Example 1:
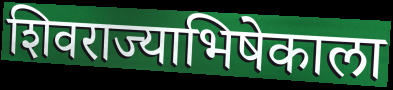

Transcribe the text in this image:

शिवराज्याभिषेकाला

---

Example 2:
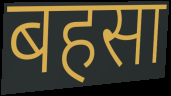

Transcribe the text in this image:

बहसा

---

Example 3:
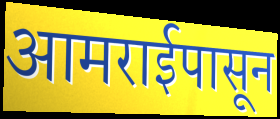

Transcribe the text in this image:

आमराईपासून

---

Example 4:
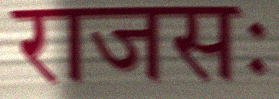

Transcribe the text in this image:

राजसः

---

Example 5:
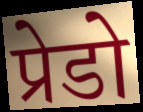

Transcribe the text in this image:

प्रेडो